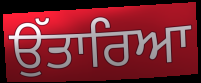
ਉੱਤਾਰਿਆ